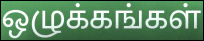
ஒழுக்கங்கள்